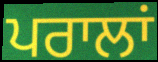
ਪਰਾਲਾਂ